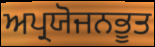
ਅਪ੍ਰਯੋਜਨਭੂਤ